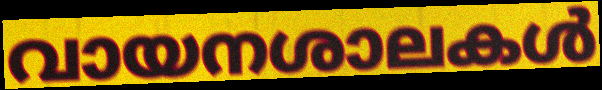
വായനശാലകൾ